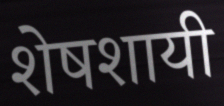
शेषशायी